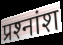
प्रश्‍नांश